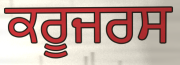
ਕਰੂਜਰਸ